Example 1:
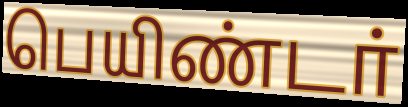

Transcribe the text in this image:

பெயிண்டர்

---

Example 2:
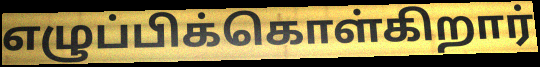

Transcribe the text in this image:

எழுப்பிக்கொள்கிறார்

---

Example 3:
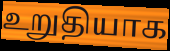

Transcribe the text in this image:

உறுதியாக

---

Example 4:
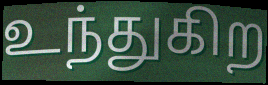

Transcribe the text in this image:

உந்துகிற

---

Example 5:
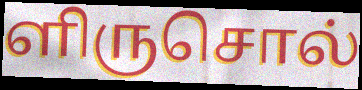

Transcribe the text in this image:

ளிருசொல்